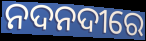
ନଦନଦୀରେ